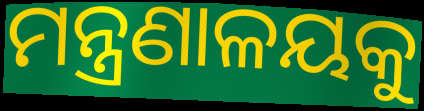
ମନ୍ତ୍ରଣାଳୟକୁ